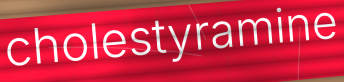
cholestyramine